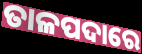
ତାଳପଦାରେ